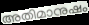
അതിമാനുഷം